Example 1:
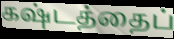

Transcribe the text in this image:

கஷ்டத்தைப்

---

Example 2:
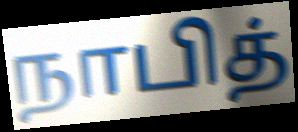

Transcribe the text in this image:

நாபித்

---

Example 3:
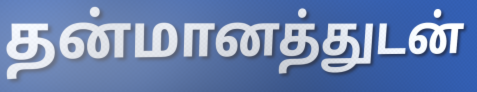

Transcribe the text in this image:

தன்மானத்துடன்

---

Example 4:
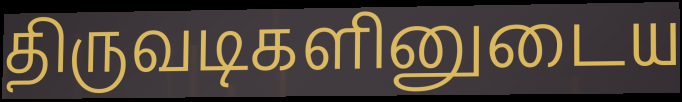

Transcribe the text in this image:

திருவடிகளினுடைய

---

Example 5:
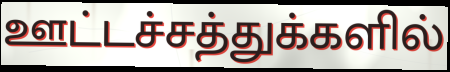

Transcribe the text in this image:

ஊட்டச்சத்துக்களில்